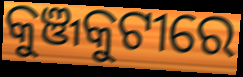
କୁଞ୍ଜକୁଟୀରେ